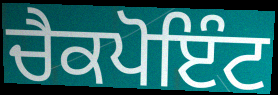
ਚੈਕਪੋਇੰਟ